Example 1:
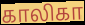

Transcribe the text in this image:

காலிகா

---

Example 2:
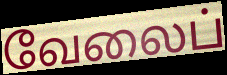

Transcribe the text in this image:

வேலைப்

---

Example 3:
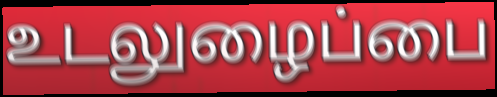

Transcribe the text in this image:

உடலுழைப்பை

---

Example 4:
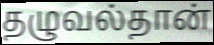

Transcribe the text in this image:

தழுவல்தான்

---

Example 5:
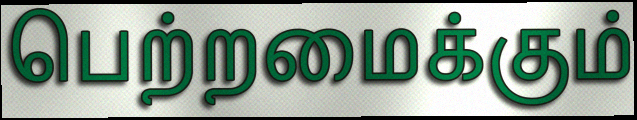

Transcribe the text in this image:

பெற்றமைக்கும்